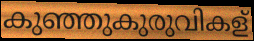
കുഞ്ഞുകുരുവികള്